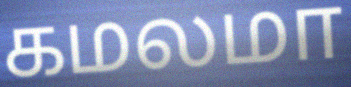
கமலமா